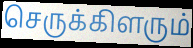
செருக்கிளரும்